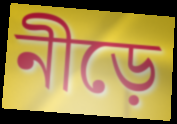
নীড়ে